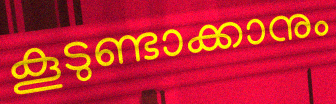
കൂടുണ്ടാക്കാനും